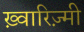
ख़्वारिज़्मी